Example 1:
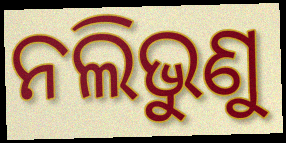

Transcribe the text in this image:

ନଲିଭୁଣୁ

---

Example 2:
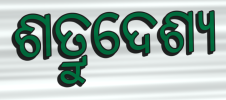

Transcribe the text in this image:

ଶତ୍ରୁଦେଶ୍ୟ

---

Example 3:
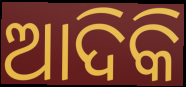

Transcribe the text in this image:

ଆଦିକି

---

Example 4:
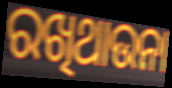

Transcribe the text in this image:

ରଖିଥାଉନା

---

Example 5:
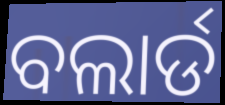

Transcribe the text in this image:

ବଲାର୍ଡ